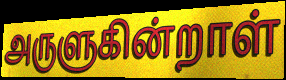
அருளுகின்றாள்